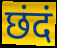
छंदं